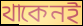
থাকেনই